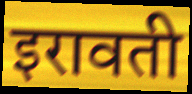
इरावती